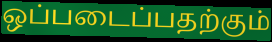
ஒப்படைப்பதற்கும்